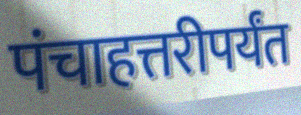
पंचाहत्तरीपर्यंत